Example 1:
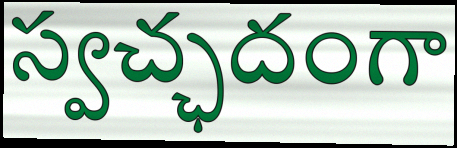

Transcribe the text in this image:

స్వచ్ఛదంగా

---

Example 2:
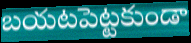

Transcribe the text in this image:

బయటపెట్టకుండా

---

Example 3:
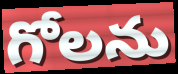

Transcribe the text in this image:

గోలను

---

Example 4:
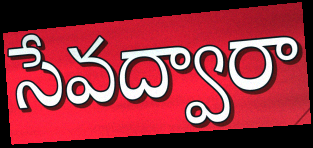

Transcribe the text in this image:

సేవద్వారా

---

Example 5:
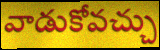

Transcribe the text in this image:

వాడుకోవచ్చు